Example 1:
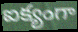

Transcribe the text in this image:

ఐక్యంగా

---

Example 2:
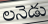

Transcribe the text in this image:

లనెడు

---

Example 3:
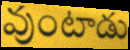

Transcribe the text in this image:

వుంటాడు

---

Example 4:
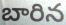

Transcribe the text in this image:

బారిన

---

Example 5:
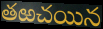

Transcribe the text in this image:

తఱచయిన